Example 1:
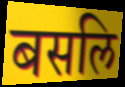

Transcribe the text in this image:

बसलि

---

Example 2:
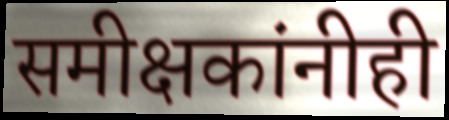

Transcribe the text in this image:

समीक्षकांनीही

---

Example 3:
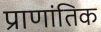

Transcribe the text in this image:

प्राणांतिक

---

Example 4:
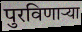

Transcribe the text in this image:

पुरविणार्‍या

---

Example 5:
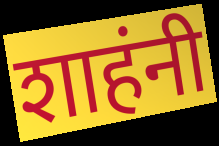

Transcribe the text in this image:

शाहंनी